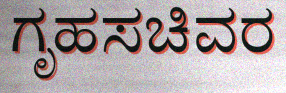
ಗೃಹಸಚಿವರ